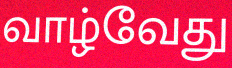
வாழ்வேது